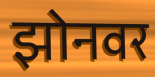
झोनवर